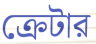
ক্রেটার